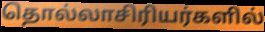
தொல்லாசிரியர்களில்